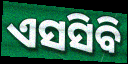
ଏସସିବି